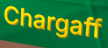
Chargaff